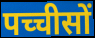
पच्चीसों